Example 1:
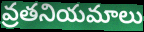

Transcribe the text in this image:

వ్రతనియమాలు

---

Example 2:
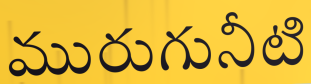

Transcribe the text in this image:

మురుగునీటి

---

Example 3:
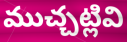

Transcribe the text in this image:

ముచ్చట్లివి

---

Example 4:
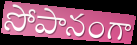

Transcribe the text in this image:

సోపానంగా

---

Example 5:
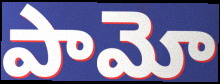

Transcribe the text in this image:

పామో